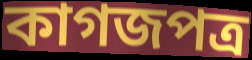
কাগজপত্ৰ